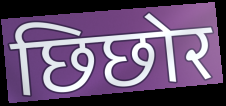
छिछोर